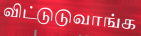
விட்டுடுவாங்க